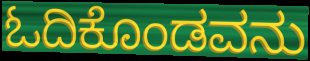
ಓದಿಕೊಂಡವನು